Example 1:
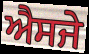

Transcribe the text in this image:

ਐਸਜੇ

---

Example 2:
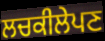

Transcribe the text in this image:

ਲਚਕੀਲੇਪਣ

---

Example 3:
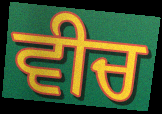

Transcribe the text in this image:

ਵੀਚ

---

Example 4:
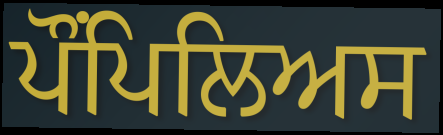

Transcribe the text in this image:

ਪੌਂਪਿਲਿਅਸ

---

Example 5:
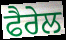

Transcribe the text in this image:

ਫੈਰੇਲ